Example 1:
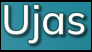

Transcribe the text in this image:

Ujas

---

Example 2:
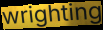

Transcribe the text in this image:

wrighting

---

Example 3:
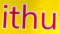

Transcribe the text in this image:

ithu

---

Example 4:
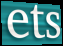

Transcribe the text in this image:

ets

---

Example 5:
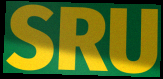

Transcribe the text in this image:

SRU